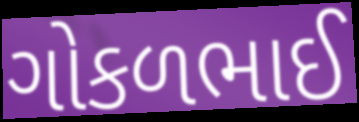
ગોકળભાઈ